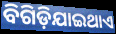
ବିଗିଡ଼ିଯାଇଥାଏ